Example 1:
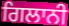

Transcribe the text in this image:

ਗਿਲਾਨੀ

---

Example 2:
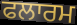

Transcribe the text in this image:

ਫਲਾਰਮ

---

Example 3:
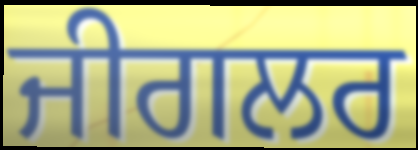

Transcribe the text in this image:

ਜੀਗਲਰ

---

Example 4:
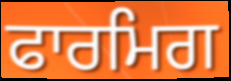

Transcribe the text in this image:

ਫਾਰਮਿਗ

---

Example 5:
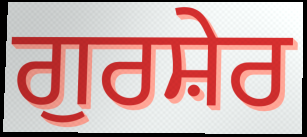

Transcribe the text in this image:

ਗੁਰਸ਼ੇਰ